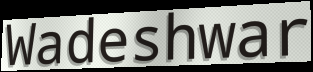
Wadeshwar